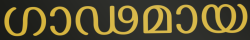
ഗാഢമായ